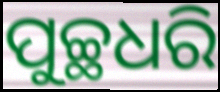
ପୁଚ୍ଛଧରି